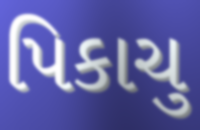
પિકાચુ